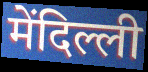
मेंदिल्ली